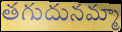
తగుదునమ్మా